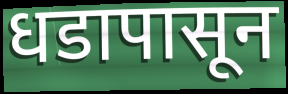
धडापासून